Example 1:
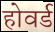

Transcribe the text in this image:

होवर्ड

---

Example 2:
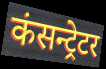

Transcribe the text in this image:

कंसन्ट्रेटर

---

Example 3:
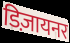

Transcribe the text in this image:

डिज़ायनर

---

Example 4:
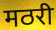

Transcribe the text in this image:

मठरी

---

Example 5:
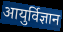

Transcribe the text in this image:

आयुर्विज्ञान